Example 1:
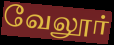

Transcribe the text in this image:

வேலூர்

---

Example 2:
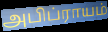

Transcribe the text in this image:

அபிப்ராயம்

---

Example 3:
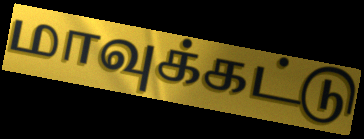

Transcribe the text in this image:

மாவுக்கட்டு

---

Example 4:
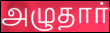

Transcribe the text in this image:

அழுதார்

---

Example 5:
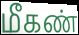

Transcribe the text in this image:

மீகண்